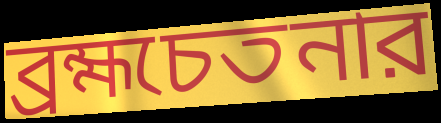
ব্রহ্মচেতনার